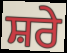
ਸ਼ਰੇ